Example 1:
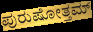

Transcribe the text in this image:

ಪುರುಷೋತ್ತಮ್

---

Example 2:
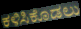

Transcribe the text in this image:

ಕಳಿಸಿಕೊಡಲು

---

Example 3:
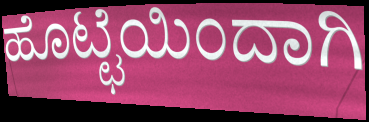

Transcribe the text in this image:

ಹೊಟ್ಟೆಯಿಂದಾಗಿ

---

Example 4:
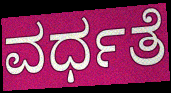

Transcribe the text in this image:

ವರ್ಧತೆ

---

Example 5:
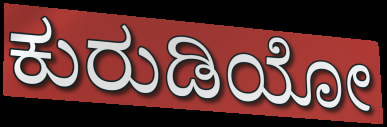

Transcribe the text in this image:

ಕುರುಡಿಯೋ